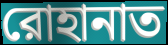
রোহানাত